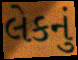
લેકનું